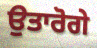
ਉਤਾਰੋਗੇ